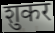
शुकर